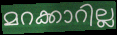
മറക്കാറില്ല